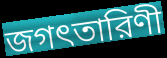
জগৎতারিণী